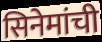
सिनेमांची